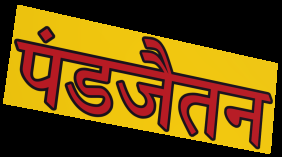
पंडजैतन